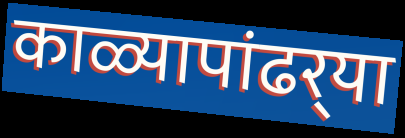
काळ्यापांढर्‍या